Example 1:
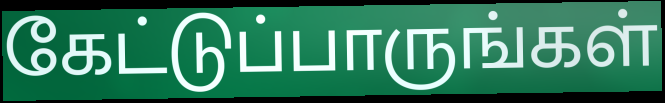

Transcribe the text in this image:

கேட்டுப்பாருங்கள்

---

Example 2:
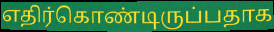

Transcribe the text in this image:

எதிர்கொண்டிருப்பதாக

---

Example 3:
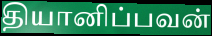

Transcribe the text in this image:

தியானிப்பவன்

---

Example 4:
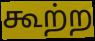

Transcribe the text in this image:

கூற்ற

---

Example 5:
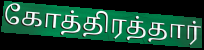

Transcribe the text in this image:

கோத்திரத்தார்